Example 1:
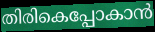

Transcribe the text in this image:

തിരികെപ്പോകാൻ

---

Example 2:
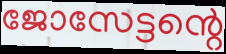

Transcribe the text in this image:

ജോസേട്ടന്റെ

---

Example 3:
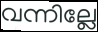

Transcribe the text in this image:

വന്നില്ലേ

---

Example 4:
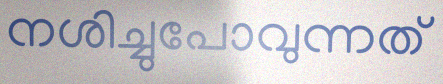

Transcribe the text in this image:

നശിച്ചുപോവുന്നത്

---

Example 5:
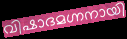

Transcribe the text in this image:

വിഷാദമഗ്നനായി